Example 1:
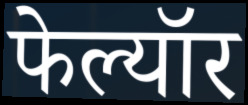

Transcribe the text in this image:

फेल्यॉर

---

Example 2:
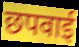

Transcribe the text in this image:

छपवाई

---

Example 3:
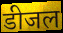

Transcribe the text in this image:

डीजल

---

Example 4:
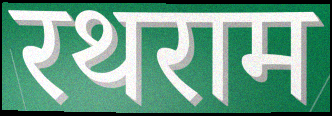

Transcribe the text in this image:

रथराम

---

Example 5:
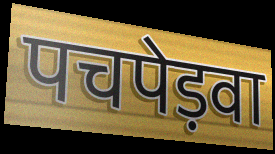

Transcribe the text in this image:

पचपेड़वा